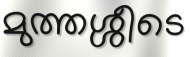
മുത്തശ്ശീടെ